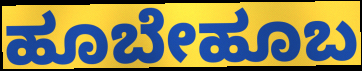
ಹೂಬೇಹೂಬ